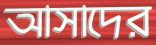
আসাদের